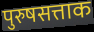
पुरुषसत्ताक